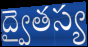
ద్వైతస్య